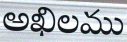
అఖిలము